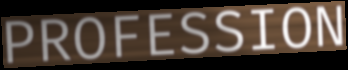
PROFESSION